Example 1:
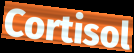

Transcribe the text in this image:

Cortisol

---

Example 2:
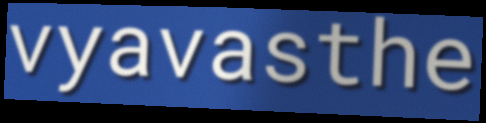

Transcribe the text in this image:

vyavasthe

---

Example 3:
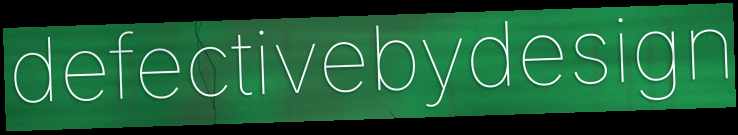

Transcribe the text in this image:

defectivebydesign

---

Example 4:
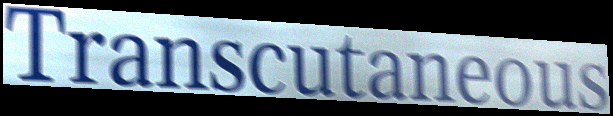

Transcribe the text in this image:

Transcutaneous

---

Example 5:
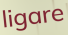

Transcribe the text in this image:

ligare